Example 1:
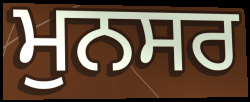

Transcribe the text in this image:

ਮੁਨਸਰ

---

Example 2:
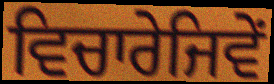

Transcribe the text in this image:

ਵਿਚਾਰੇਜਿਵੇਂ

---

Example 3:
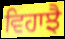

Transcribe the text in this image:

ਵਿਹਾਝੈ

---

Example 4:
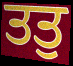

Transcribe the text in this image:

ਤਤੁ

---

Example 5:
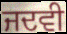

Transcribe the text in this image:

ਜਦਵੀ